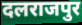
दलराजपुर